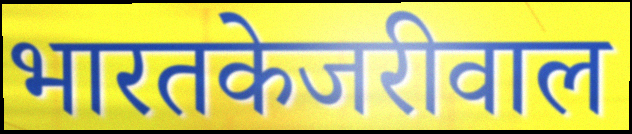
भारतकेजरीवाल